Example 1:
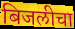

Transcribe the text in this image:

बिजलीचा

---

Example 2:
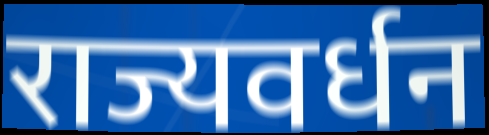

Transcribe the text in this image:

राज्यवर्धन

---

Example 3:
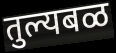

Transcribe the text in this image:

तुल्यबळ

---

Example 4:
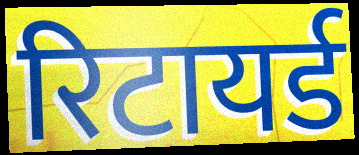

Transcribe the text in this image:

रिटायर्ड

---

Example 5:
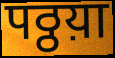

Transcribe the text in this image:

पठ्ठय़ा